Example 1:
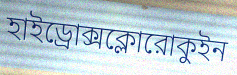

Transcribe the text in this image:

হাইড্রোক্সক্লোরোকুইন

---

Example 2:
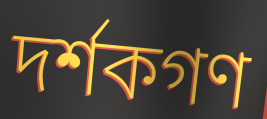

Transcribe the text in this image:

দর্শকগণ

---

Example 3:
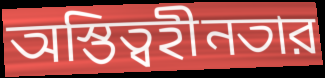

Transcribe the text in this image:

অস্তিত্বহীনতার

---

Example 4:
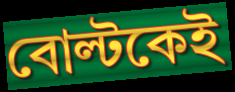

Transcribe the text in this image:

বোল্টকেই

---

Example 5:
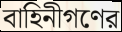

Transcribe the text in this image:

বাহিনীগণের